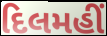
દિલમહીં